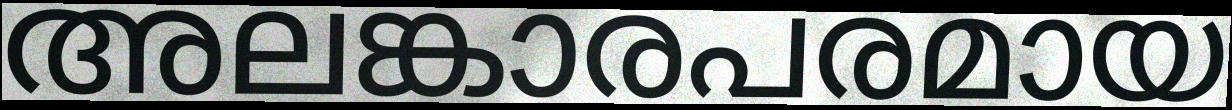
അലങ്കാരപരമായ